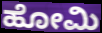
ಹೋಮಿ